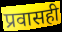
प्रवासही